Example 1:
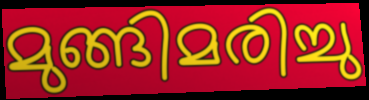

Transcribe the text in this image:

മുങ്ങിമരിച്ചു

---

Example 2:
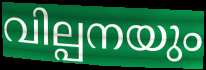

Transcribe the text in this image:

വില്പനയും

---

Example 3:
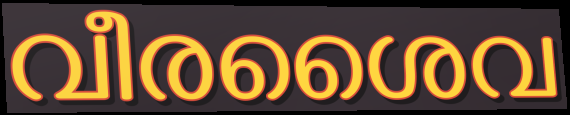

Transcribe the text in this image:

വീരശൈവ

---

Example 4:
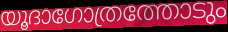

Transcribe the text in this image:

യൂദാഗോത്രത്തോടും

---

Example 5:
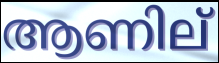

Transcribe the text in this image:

ആണില്